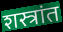
शस्त्रांत